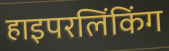
हाइपरलिंकिंग